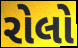
રોલો